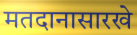
मतदानासारखे